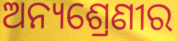
ଅନ୍ୟଶ୍ରେଣୀର